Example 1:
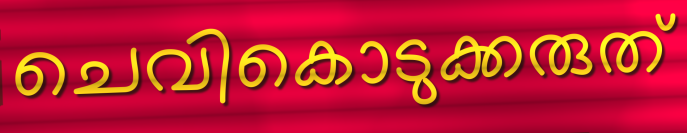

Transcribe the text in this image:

ചെവികൊടുക്കരുത്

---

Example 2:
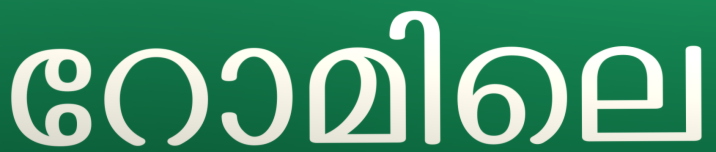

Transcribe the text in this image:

റോമിലെ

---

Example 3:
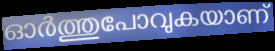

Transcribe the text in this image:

ഓർത്തുപോവുകയാണ്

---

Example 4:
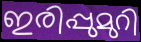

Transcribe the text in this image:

ഇരിപ്പുമുറി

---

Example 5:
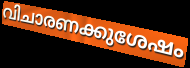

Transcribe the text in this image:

വിചാരണക്കുശേഷം